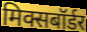
मिक्सबॉर्डर